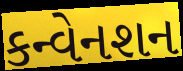
કન્વેનશન